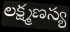
లక్ష్మణస్య